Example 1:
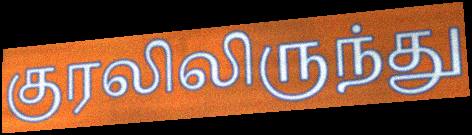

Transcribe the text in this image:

குரலிலிருந்து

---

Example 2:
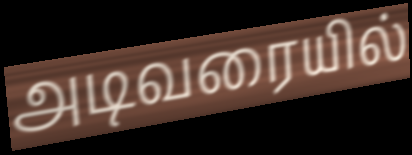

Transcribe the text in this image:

அடிவரையில்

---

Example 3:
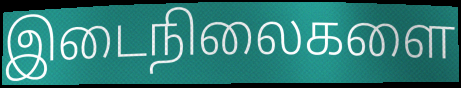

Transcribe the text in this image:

இடைநிலைகளை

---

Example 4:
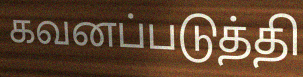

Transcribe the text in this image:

கவனப்படுத்தி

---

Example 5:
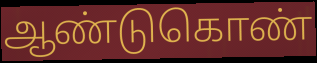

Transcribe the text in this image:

ஆண்டுகொண்